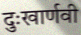
दुःखार्णवी